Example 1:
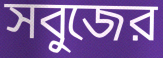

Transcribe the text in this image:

সবুজের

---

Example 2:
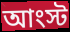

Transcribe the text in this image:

আংস্ট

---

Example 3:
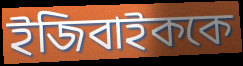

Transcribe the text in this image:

ইজিবাইককে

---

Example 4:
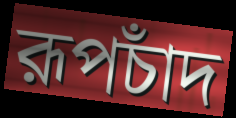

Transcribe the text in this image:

রূপচাঁদ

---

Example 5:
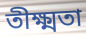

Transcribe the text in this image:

তীক্ষ্মতা